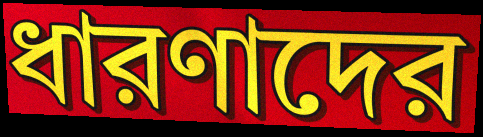
ধারণাদের